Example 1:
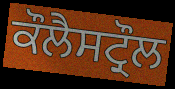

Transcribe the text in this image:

ਕੌਲੈਸਟ੍ਰੌਲ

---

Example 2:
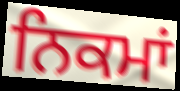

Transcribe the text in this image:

ਨਿਕਮਾਂ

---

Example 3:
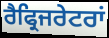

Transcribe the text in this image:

ਰੈਫ੍ਰਿਜਰੇਟਰਾਂ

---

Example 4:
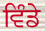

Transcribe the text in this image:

ਵਿੰਡੇ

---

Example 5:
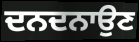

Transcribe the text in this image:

ਦਨਦਨਾਉਣ